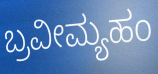
ಬ್ರವೀಮ್ಯಹಂ